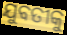
ଯୁବତୀକୁ